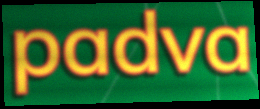
padva